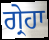
ਗ੍ਰੇਹਾ